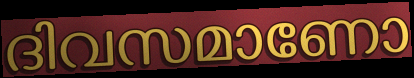
ദിവസമാണോ